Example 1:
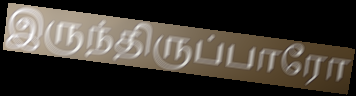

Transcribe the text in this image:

இருந்திருப்பாரோ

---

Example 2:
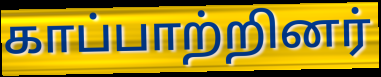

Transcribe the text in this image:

காப்பாற்றினர்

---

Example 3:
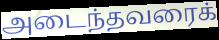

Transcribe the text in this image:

அடைந்தவரைக்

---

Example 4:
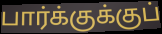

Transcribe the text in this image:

பார்க்குக்குப்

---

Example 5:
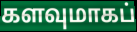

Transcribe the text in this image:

களவுமாகப்